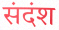
संदंश